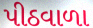
પીઠવાળા